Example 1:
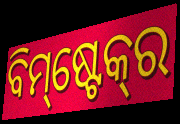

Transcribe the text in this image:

ବିମ୍‌ଷ୍ଟେକ୍‌ର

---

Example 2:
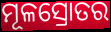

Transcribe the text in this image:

ମୂଳସ୍ରୋତର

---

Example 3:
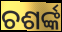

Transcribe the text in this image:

ଚଶର୍ଙ୍କ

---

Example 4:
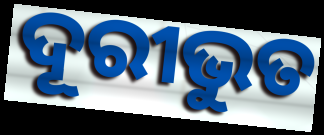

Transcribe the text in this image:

ଦୂରୀଭୁତ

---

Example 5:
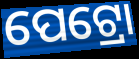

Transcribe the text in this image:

ପେଟ୍ରୋ